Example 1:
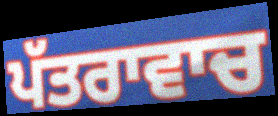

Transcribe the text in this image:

ਪੱਤਰਾਵਾਚ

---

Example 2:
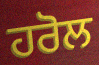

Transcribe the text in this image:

ਹਰੋਲ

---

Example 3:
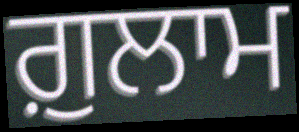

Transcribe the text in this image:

ਗ਼ੁਲਾਮ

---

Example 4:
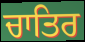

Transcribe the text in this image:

ਚਾਤਿਰ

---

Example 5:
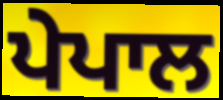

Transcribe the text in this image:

ਪੇਪਾਲ